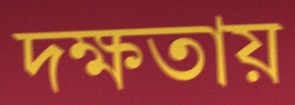
দক্ষতায়